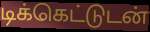
டிக்கெட்டுடன்